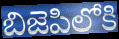
బిజెపిలోకి